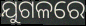
ଯୁଗଳରେ